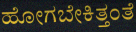
ಹೋಗಬೇಕಿತ್ತಂತೆ